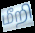
மீறி